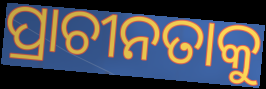
ପ୍ରାଚୀନତାକୁ